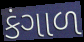
કંગાળ